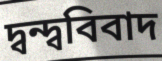
দ্বন্দ্ববিবাদ